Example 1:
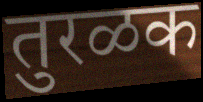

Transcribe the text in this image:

तुरळक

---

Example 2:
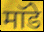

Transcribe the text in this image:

मॉडे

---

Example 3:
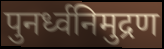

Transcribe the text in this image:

पुनर्ध्वनिमुद्रण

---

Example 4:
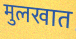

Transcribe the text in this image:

मुलखात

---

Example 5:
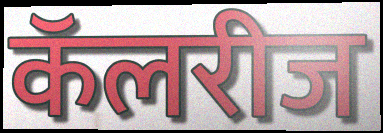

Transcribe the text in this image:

कॅलरीज